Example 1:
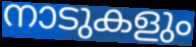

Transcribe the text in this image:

നാടുകളും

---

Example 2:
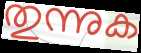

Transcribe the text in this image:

തുന്നുക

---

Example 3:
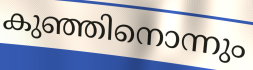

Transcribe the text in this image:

കുഞ്ഞിനൊന്നും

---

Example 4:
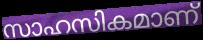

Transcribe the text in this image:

സാഹസികമാണ്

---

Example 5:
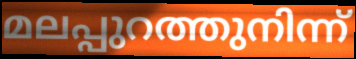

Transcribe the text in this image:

മലപ്പുറത്തുനിന്ന്